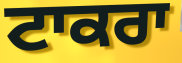
ਟਾਕਰਾ